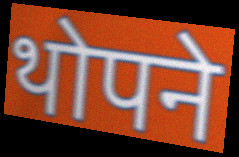
थोपने